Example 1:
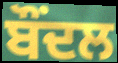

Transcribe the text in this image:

ਬੌਂਦਲ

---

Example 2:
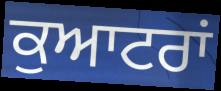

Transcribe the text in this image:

ਕੁਆਟਰਾਂ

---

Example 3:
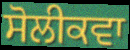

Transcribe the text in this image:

ਸੋਲੀਕਵਾ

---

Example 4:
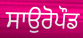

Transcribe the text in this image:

ਸਾਉਰੋਪੌਡ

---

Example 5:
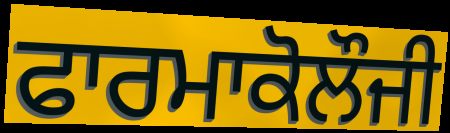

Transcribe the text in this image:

ਫਾਰਮਾਕੋਲੌਜੀ